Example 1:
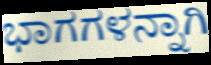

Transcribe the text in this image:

ಭಾಗಗಳನ್ನಾಗಿ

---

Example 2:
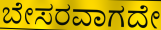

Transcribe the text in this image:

ಬೇಸರವಾಗದೇ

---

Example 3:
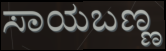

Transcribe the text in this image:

ಸಾಯಬಣ್ಣ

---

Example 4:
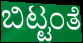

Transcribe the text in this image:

ಬಿಟ್ಟಂತೆ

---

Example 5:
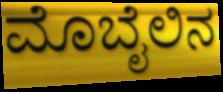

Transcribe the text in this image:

ಮೊಬೈಲಿನ